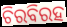
ଚିରବିରହ